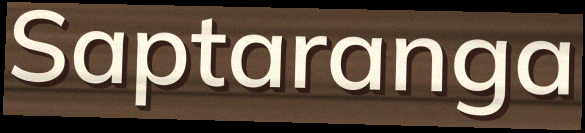
Saptaranga